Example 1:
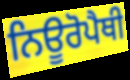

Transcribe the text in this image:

ਨਿਊਰੋਪੈਥੀ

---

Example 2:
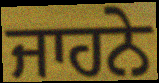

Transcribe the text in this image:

ਜਾਹਨੇ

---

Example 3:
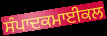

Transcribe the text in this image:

ਸੰਪਾਦਕਮਾਈਕਲ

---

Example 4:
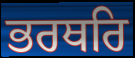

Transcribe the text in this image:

ਭਰਥਰਿ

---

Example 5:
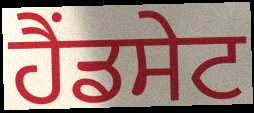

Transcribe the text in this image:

ਹੈਂਡਸੇਟ